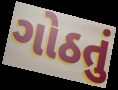
ગોઠતું